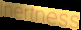
Inertness